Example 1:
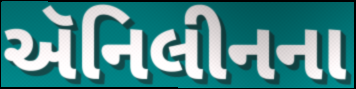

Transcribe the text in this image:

ઍનિલીનના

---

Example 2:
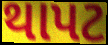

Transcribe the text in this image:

થાપટ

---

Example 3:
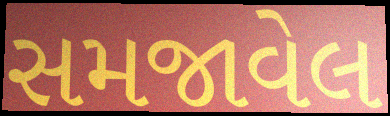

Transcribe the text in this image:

સમજાવેલ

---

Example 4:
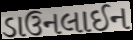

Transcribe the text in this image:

ડાઉનલાઈન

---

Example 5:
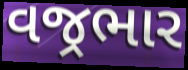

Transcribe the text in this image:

વજ્રભાર